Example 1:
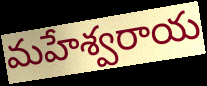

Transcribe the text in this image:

మహేశ్వరాయ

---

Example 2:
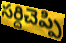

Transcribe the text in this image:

సర్దిచెప్పి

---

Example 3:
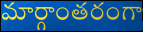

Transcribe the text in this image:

మార్గాంతరంగా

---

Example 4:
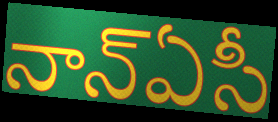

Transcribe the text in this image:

నాన్ఏసీ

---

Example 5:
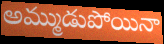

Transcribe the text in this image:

అమ్ముడుపోయినా